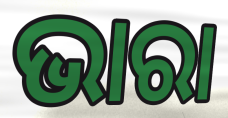
ଭାରା